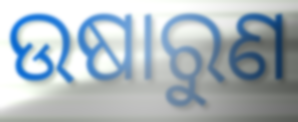
ଉଷାରୁଣ